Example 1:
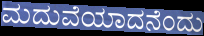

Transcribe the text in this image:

ಮದುವೆಯಾದನೆಂದು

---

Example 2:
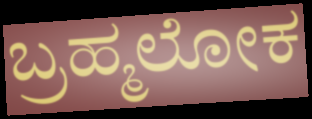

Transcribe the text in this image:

ಬ್ರಹ್ಮಲೋಕ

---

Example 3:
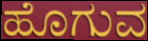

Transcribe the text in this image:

ಹೊಗುವ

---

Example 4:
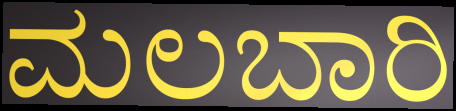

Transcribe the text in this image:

ಮಲಬಾರಿ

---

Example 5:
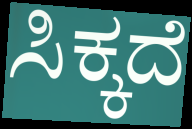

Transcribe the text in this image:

ಸಿಕ್ಕದೆ